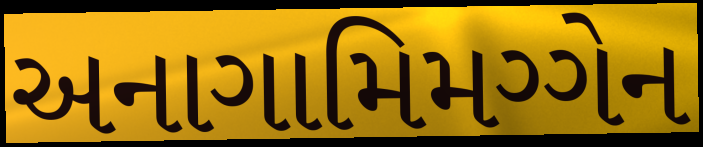
અનાગામિમગ્ગેન